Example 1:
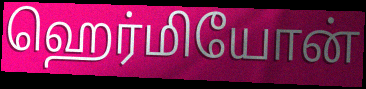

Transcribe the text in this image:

ஹெர்மியோன்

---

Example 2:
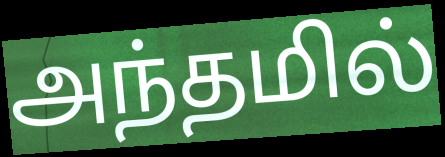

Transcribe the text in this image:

அந்தமில்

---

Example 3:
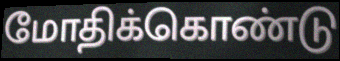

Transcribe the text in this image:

மோதிக்கொண்டு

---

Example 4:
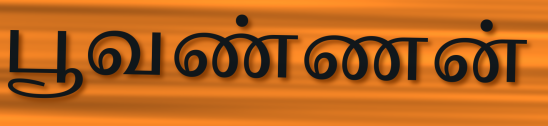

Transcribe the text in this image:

பூவண்ணன்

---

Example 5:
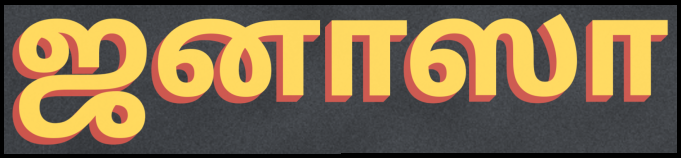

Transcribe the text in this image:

ஜனாஸா